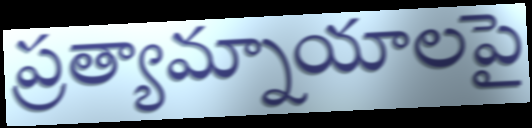
ప్రత్యామ్నాయాలపై